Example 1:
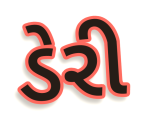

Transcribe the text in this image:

ડેરી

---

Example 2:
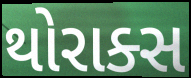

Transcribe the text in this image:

થોરાક્સ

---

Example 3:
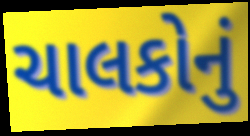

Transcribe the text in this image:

ચાલકોનું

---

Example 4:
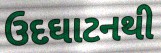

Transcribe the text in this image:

ઉદઘાટનથી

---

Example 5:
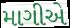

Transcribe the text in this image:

માગીએ